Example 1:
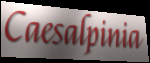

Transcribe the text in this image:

Caesalpinia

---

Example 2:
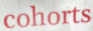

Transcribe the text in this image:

cohorts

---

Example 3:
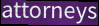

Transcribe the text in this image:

attorneys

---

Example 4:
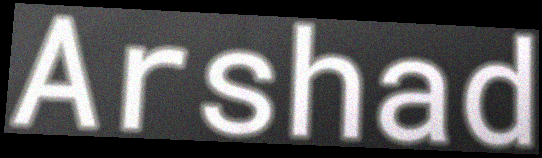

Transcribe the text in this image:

Arshad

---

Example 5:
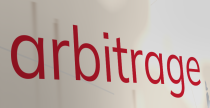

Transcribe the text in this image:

arbitrage